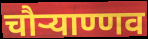
चौऱ्याण्णव